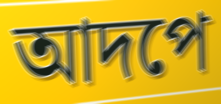
আদপে